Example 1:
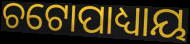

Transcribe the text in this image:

ଚଟୋପାଧ୍ୟାୟ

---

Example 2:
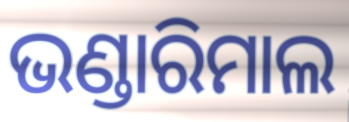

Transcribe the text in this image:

ଭଣ୍ଡାରିମାଲ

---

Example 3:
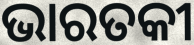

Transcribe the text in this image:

ଭାରତକୀ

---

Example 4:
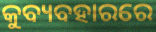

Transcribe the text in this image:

କୁବ୍ୟବହାରରେ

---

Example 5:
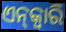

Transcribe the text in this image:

ଏନ୍‌କ୍ୱାରି